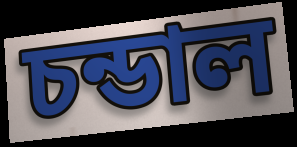
চন্ডাল